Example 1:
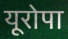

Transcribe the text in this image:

यूरोपा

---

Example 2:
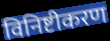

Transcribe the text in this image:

विनिष्टीकरण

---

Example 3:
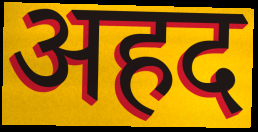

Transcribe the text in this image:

अहद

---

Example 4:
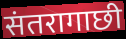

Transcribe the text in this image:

संतरागाछी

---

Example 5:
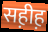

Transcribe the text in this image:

सह़ीह़